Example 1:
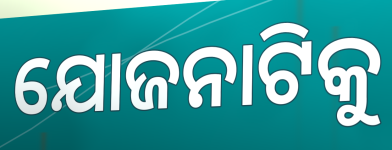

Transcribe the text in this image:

ଯୋଜନାଟିକୁ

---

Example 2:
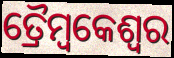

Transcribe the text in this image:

ତ୍ରୈମ୍ବକେଶ୍ୱର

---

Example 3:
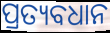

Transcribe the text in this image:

ପ୍ରତ୍ୟବଧାନ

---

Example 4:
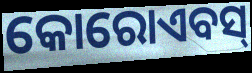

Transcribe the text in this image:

କୋରୋଏବସ୍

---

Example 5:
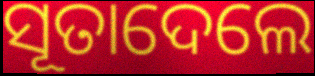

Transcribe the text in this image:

ସୂତାଦେଲେ